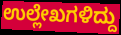
ಉಲ್ಲೇಖಗಳಿದ್ದು